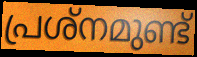
പ്രശ്നമുണ്ട്